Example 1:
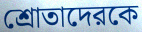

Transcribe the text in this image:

শ্রোতাদেরকে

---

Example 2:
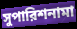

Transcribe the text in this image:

সুপারিশনামা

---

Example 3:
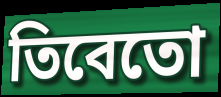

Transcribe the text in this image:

তিবেতো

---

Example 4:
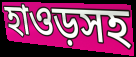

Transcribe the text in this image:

হাওড়সহ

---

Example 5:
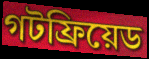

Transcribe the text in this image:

গটফ্রিয়েড